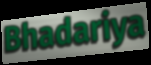
Bhadariya